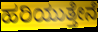
ಹರಿಯುತ್ತೇನೆ